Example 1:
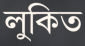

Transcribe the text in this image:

লুকিত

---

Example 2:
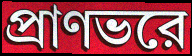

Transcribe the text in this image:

প্রাণভরে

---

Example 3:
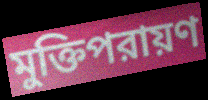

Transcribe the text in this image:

মুক্তিপরায়ণ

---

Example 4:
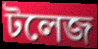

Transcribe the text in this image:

টলেজ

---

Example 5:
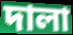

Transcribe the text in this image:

দালা